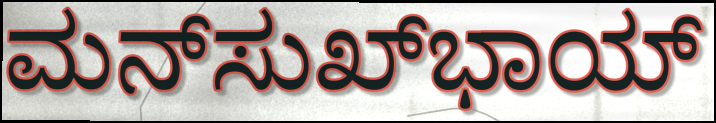
ಮನ್‌ಸುಖ್‌ಭಾಯ್